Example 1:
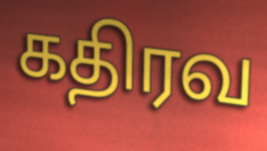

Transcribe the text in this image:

கதிரவ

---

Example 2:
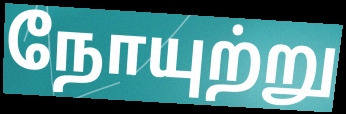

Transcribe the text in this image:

நோயுற்று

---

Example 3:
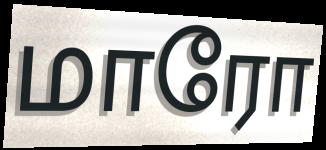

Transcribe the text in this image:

மாரோ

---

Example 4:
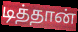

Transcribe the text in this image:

டித்தான்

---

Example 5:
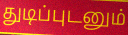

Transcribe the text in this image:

துடிப்புடனும்